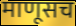
माणूसच